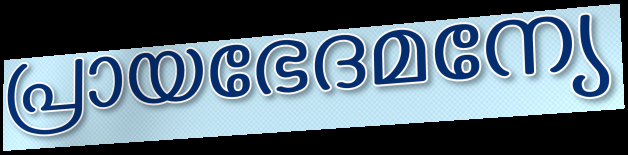
പ്രായഭേദമന്യേ